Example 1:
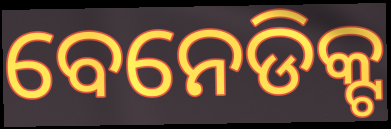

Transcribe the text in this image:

ବେନେଡିକ୍ଟ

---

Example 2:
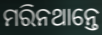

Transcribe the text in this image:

ମରିନଥାନ୍ତେ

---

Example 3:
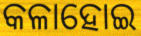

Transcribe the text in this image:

କଳାହୋଇ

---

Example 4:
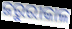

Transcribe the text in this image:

ଜରୁରୀକାଳ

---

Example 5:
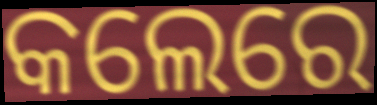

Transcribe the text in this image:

କଲେରେ